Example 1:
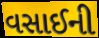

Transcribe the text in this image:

વસાઈની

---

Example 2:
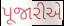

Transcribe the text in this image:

પૂજારીએ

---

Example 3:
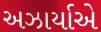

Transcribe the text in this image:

અઝાર્યાએ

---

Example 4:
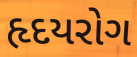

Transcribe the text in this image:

હૃદયરોગ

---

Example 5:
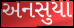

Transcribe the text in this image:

અનસુયા